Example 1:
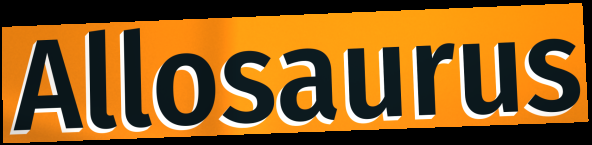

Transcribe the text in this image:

Allosaurus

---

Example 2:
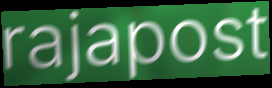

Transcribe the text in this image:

rajapost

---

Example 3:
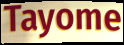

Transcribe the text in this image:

Tayome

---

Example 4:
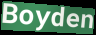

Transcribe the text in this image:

Boyden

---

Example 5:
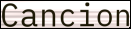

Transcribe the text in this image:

Cancion